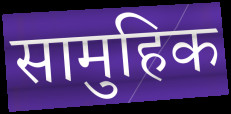
सामुहिक